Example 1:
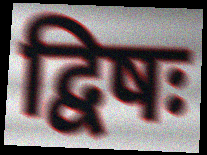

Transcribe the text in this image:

द्विषः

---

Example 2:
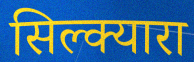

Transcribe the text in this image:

सिल्क्यारा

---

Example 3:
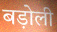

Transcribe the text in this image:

बड़ोली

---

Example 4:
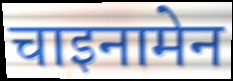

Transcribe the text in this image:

चाइनामेन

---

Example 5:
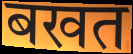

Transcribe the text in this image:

बखत